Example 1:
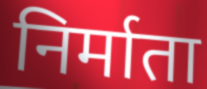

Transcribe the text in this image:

निर्माता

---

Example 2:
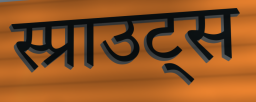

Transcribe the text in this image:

स्प्राउट्स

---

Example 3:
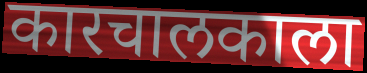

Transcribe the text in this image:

कारचालकाला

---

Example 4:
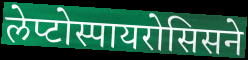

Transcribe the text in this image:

लेप्टोस्पायरोसिसने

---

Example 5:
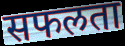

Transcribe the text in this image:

सफलता